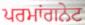
ਪਰਮਾਂਗਨੇਟ